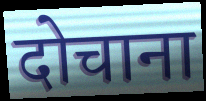
दोचाना